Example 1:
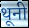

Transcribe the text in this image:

थूनी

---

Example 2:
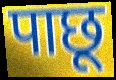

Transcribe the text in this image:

पाछू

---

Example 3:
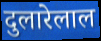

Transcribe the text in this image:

दुलारेलाल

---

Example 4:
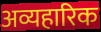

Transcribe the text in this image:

अव्यहारिक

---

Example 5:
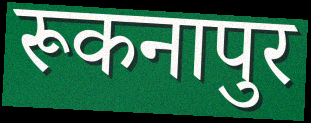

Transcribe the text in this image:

रूकनापुर